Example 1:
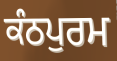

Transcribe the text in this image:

ਕੰਠਪੁਰਮ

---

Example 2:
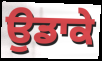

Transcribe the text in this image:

ਉਡਾਕੇ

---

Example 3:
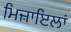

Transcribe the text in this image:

ਮਿਜ਼ਾਇਲਾਂ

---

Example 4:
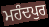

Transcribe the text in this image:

ਮਹੰਦਪੁਰ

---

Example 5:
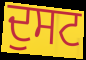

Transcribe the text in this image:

ਦੁਸਟ